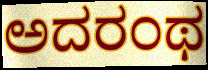
ಅದರಂಥ